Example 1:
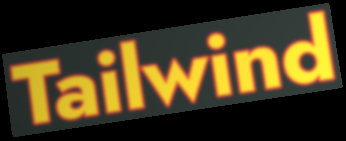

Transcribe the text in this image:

Tailwind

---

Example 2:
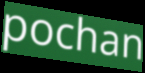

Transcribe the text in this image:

pochan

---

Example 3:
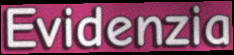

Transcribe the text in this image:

Evidenzia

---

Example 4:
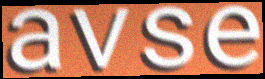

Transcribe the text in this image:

avse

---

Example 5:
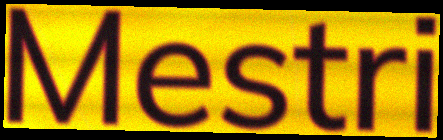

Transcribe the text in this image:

Mestri